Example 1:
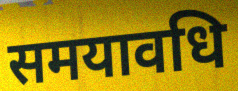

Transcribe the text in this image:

समयावधि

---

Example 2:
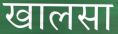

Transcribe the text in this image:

खालसा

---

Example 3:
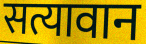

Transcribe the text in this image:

सत्यावान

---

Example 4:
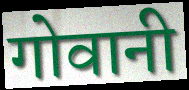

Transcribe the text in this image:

गोवानी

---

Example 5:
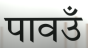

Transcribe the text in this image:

पावउँ